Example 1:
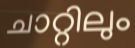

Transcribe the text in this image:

ചാറ്റിലും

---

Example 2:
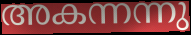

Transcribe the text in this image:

അകന്നന്നു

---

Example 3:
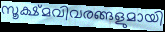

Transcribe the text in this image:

സൂക്ഷ്മവിവരങ്ങളുമായി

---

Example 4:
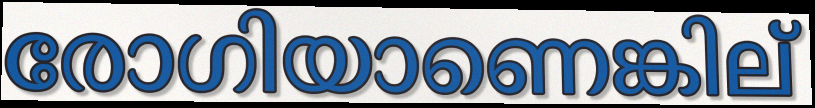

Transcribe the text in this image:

രോഗിയാണെങ്കില്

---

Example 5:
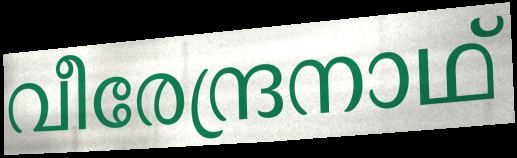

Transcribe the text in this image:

വീരേന്ദ്രനാഥ്